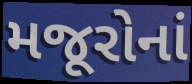
મજૂરોનાં